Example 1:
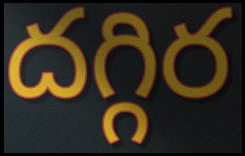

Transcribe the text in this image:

దగ్గిర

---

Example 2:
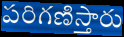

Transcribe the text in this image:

పరిగణిస్తారు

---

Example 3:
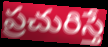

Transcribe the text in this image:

ప్రచురిస్తే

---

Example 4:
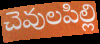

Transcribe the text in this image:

చెవులపిల్లి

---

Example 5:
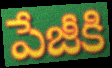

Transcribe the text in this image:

పేజీకి